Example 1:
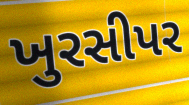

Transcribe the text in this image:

ખુરસીપર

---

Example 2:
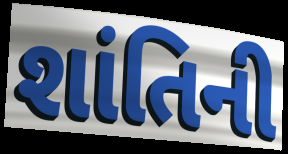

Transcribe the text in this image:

શાંતિની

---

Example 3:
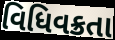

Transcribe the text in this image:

વિધિવક્રતા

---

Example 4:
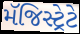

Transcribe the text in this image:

મૅજિસ્ટ્રેટે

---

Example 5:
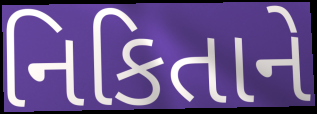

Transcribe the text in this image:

નિકિતાને